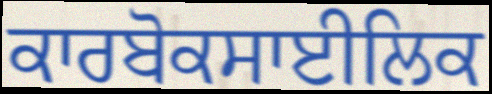
ਕਾਰਬੋਕਸਾਈਲਿਕ